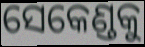
ସେକେଣ୍ଡକୁ